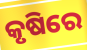
କୃଷିରେ